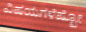
ವಿಷಯಗಳೆಷ್ಟೋ